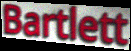
Bartlett